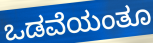
ಒಡವೆಯಂತೂ